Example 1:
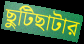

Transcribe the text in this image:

ছুটিছাটার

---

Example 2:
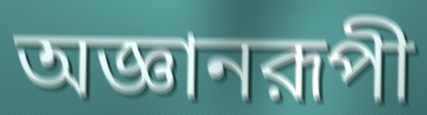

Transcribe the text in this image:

অজ্ঞানরূপী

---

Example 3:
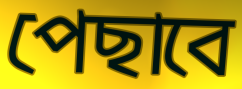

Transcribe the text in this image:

পেছাবে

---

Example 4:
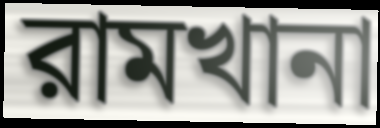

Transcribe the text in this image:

রামখানা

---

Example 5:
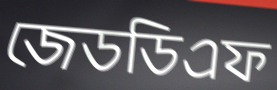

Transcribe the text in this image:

জেডডিএফ